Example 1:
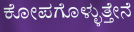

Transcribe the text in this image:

ಕೋಪಗೊಳ್ಳುತ್ತೇನೆ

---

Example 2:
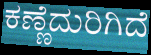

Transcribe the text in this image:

ಕಣ್ಣೆದುರಿಗಿದೆ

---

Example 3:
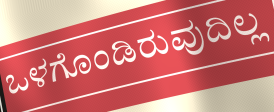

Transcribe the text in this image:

ಒಳಗೊಂಡಿರುವುದಿಲ್ಲ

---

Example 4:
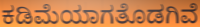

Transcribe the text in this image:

ಕಡಿಮೆಯಾಗತೊಡಗಿವೆ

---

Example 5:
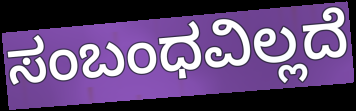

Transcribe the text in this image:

ಸಂಬಂಧವಿಲ್ಲದೆ